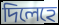
দিলেহে